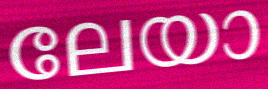
ലേയാ